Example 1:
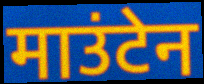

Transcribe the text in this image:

माउंटेन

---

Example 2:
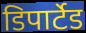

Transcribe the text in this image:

डिपार्टेड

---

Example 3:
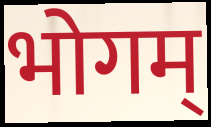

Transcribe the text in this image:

भोगम्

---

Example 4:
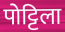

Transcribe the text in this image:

पोट्टिला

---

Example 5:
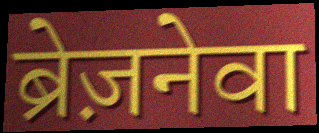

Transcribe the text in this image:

ब्रेज़नेवा